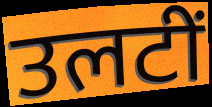
उलटीं